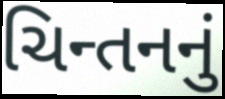
ચિન્તનનું